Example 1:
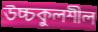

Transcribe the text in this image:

উচ্চকুলশীল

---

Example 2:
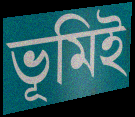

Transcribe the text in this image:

ভূমিই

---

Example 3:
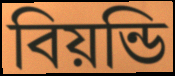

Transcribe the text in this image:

বিয়ন্ডি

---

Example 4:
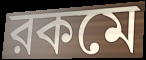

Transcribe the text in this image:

রকমে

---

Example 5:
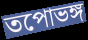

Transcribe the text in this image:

তপোভঙ্গ